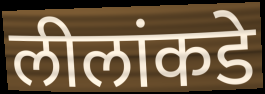
लीलांकडे